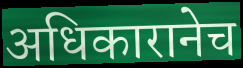
अधिकारानेच